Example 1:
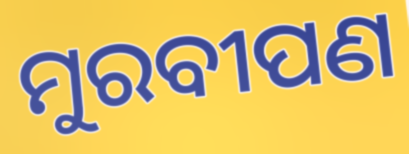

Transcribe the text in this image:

ମୁରବୀପଣ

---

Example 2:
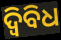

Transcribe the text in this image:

ଦ୍ୱିବିଧ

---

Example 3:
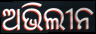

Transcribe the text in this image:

ଅଭିଲୀନ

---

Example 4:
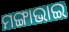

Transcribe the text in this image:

ମଙ୍ଗାଭାଇ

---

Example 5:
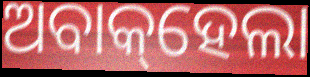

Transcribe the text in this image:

ଅବାକ୍‌ହେଲା